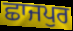
ਛਾਜਪੁਰ